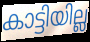
കാട്ടിയില്ല